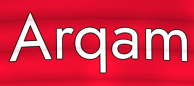
Arqam